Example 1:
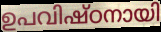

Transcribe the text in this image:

ഉപവിഷ്ഠനായി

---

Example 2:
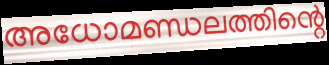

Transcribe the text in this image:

അധോമണ്ഡലത്തിന്റെ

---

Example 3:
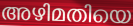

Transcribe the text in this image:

അഴിമതിയെ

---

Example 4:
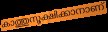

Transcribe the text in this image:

കാത്തുസൂക്ഷിക്കാനാണ്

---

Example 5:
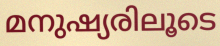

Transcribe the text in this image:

മനുഷ്യരിലൂടെ